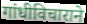
गांधीविचाराने